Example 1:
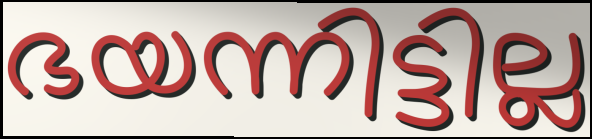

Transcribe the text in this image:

ഭയന്നിട്ടില്ല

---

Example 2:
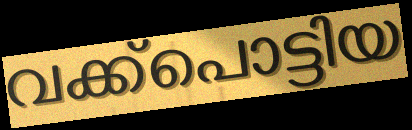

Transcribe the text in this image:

വക്ക്പൊട്ടിയ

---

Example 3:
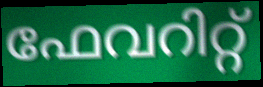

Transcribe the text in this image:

ഫേവറിറ്റ്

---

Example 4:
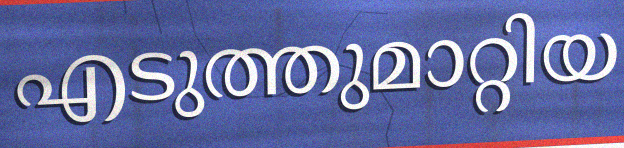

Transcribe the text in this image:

എടുത്തുമാറ്റിയ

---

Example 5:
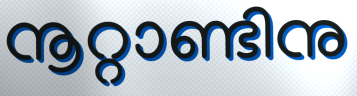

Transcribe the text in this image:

നൂറ്റാണ്ടിനു